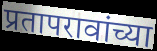
प्रतापरावांच्या